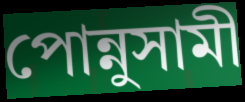
পোন্নুসামী